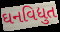
ઘનવિદ્યુત